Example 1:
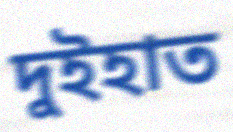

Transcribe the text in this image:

দুইহাত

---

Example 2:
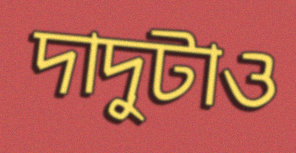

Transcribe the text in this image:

দাদুটাও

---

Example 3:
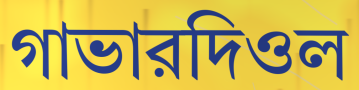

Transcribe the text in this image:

গাভারদিওল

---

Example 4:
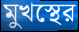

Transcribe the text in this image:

মুখস্থের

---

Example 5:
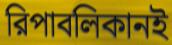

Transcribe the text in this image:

রিপাবলিকানই